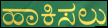
ಹಾಕಿಸಲು